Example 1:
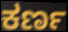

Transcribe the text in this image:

ಕರ್ಣ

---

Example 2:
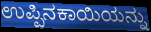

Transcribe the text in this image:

ಉಪ್ಪಿನಕಾಯಿಯನ್ನು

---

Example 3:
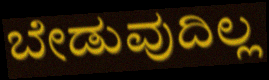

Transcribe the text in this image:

ಬೇಡುವುದಿಲ್ಲ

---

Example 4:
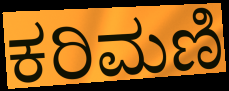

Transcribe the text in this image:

ಕರಿಮಣಿ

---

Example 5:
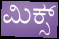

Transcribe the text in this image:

ಮಿಕ್ಸ್